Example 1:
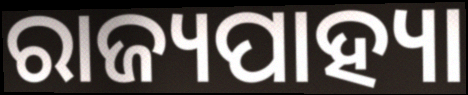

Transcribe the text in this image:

ରାଜ୍ୟପାହ୍ୟା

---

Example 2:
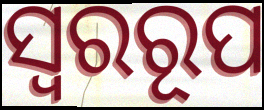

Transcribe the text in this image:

ସ୍ୱରରୂପ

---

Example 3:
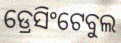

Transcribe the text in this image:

ଡ୍ରେସିଂଟେବୁଲ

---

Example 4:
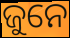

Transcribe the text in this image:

ଜୁନେ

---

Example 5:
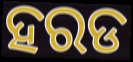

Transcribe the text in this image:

ହରଡ